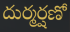
దుర్మర్షణో